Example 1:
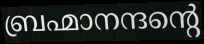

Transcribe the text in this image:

ബ്രഹ്മാനന്ദന്റെ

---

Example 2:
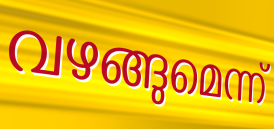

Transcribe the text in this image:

വഴങ്ങുമെന്ന്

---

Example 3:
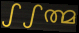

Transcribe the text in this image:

ഽഽത്മ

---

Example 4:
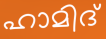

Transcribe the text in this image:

ഹാമിദ്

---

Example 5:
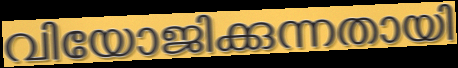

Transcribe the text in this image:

വിയോജിക്കുന്നതായി